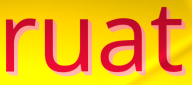
ruat